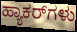
ಹ್ಯಾಕರ್‌ಗಳು